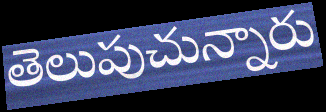
తెలుపుచున్నారు